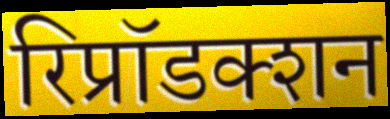
रिप्रॉडक्शन